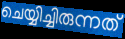
ചെയ്യിച്ചിരുന്നത്